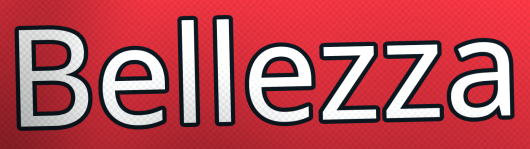
Bellezza